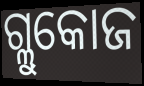
ଗ୍ଲୁକୋଜ